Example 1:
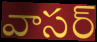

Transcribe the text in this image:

వాసర్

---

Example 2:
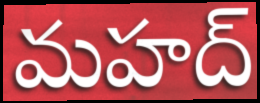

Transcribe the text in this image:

మహద్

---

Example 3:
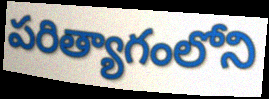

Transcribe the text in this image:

పరిత్యాగంలోని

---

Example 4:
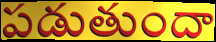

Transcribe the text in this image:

పడుతుందా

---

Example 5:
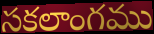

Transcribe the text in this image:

సకలాంగము